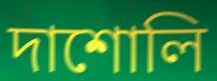
দাশোলি